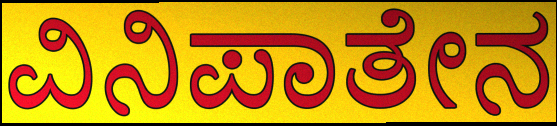
ವಿನಿಪಾತೇನ